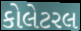
કોલેટરલ